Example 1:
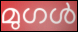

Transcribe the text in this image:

മുഗൾ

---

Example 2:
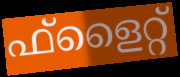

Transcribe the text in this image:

ഫ്ളൈറ്റ്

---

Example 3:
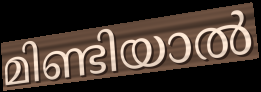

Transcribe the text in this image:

മിണ്ടിയാൽ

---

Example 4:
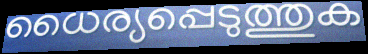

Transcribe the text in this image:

ധൈര്യപ്പെടുത്തുക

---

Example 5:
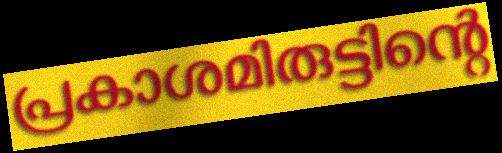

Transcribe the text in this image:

പ്രകാശമിരുട്ടിന്റെ